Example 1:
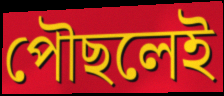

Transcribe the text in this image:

পৌছলেই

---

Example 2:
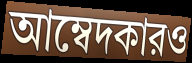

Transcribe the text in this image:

আম্বেদকারও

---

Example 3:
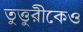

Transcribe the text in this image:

তুত্তুরীকেও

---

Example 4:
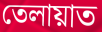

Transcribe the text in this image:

তেলায়াত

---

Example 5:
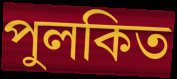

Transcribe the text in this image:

পুলকিত